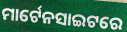
ମାର୍ଟେନସାଇଟରେ